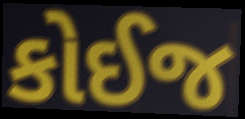
કોઈજ